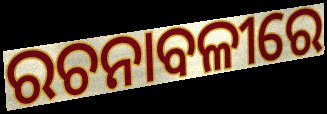
ରଚନାବଳୀରେ